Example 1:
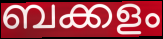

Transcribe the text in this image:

ബക്കളം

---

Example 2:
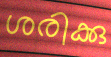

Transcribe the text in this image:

ശരിക്കു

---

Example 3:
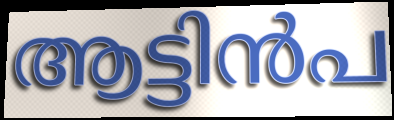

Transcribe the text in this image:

ആട്ടിൻപ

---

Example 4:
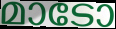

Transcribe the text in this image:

മാടോ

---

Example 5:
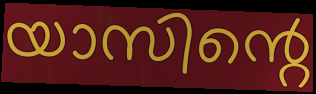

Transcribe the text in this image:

യാസിന്റെ